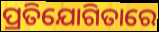
ପ୍ରତିଯୋଗିତାରେ